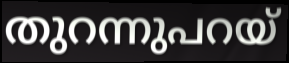
തുറന്നുപറയ്